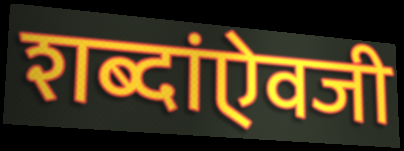
शब्दांऐवजी